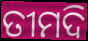
ତୀମଦି